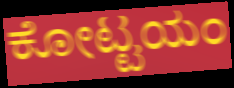
ಕೋಟ್ಟಯಂ